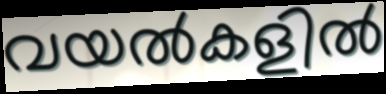
വയൽകളിൽ